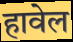
हावेल